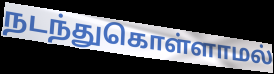
நடந்துகொள்ளாமல்